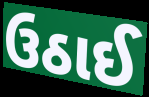
ઉઠાઈ